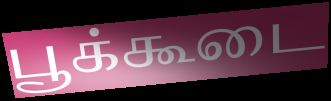
பூக்கூடை